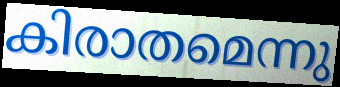
കിരാതമെന്നു